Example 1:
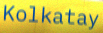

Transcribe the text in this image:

Kolkatay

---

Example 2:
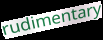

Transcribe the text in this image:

rudimentary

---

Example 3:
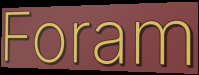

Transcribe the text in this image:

Foram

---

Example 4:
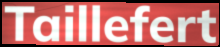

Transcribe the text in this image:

Taillefert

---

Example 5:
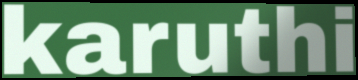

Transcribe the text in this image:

karuthi